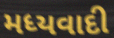
મધ્યવાદી